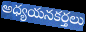
అధ్యయనకర్తలు